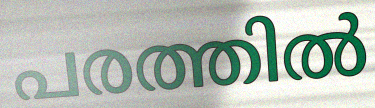
പരത്തിൽ